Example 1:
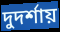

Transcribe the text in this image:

দুদর্শায়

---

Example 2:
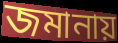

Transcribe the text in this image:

জমানায়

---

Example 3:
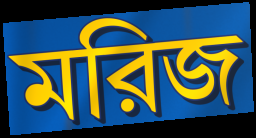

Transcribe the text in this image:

মরিজ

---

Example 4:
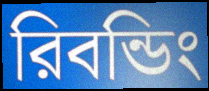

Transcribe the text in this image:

রিবন্ডিং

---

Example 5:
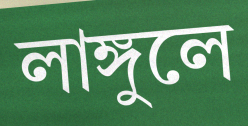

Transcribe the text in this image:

লাঙ্গুলে